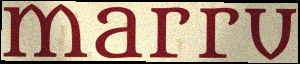
marru